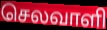
செலவாளி